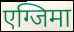
एग्जिमा